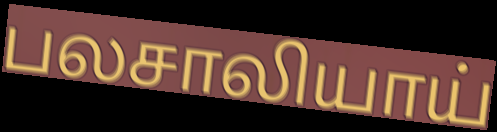
பலசாலியாய்